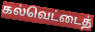
கல்வெட்டைத்